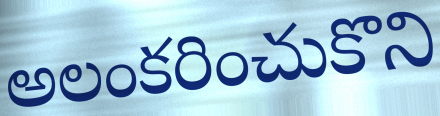
అలంకరించుకొని